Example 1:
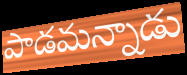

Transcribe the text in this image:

పాడమన్నాడు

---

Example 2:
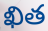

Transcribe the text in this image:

ఖిత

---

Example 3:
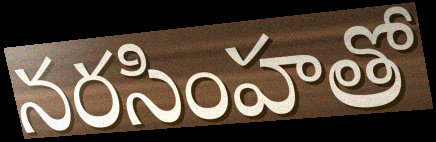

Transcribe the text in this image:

నరసింహతో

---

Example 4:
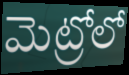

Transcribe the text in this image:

మెట్రోలో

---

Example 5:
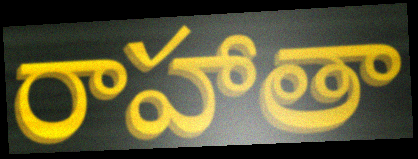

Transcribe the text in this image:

రాహాతా